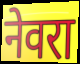
नेवरा